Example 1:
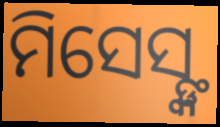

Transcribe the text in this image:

ମିସେସ୍ଙ୍କ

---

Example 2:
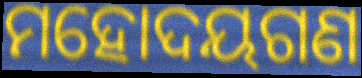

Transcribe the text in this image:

ମହୋଦୟଗଣ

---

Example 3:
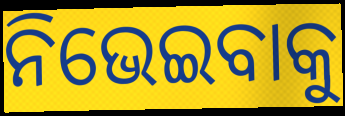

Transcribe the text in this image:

ନିଭେଇବାକୁ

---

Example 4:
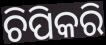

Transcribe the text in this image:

ଚିପିକରି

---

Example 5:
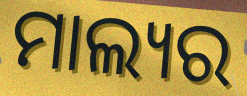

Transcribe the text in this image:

ମାଲ୍ୟର